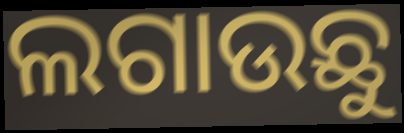
ଲଗାଉଛୁ